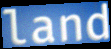
land